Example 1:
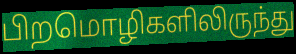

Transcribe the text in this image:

பிறமொழிகளிலிருந்து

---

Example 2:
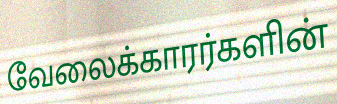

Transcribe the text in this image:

வேலைக்காரர்களின்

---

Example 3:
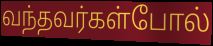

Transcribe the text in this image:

வந்தவர்கள்போல்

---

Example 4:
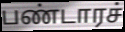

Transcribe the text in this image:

பண்டாரச்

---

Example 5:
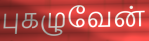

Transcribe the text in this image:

புகழுவேன்